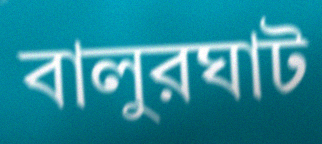
বালুরঘাট